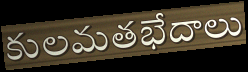
కులమతభేదాలు